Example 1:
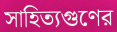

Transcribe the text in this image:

সাহিত্যগুণের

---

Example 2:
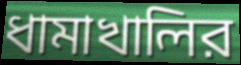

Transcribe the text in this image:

ধামাখালির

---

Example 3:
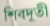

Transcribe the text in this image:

শিবদূতী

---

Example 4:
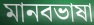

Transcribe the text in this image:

মানবভাষা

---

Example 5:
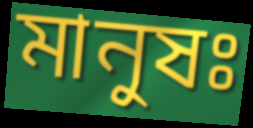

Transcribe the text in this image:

মানুষঃ